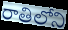
రాతిలోని